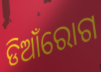
ଡିଆଁରୋଗ